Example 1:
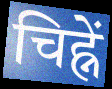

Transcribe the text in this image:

चिह्नें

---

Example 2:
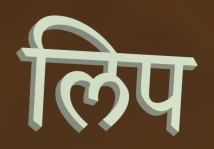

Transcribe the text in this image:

लिप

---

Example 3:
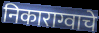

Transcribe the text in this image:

निकाराग्वाचे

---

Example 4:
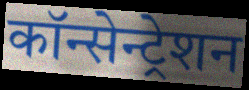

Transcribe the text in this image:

कॉन्सेन्ट्रेशन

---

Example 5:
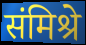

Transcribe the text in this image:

संमिश्रे